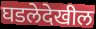
घडलेदेखील